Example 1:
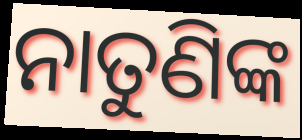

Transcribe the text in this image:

ନାତୁଣିଙ୍କ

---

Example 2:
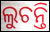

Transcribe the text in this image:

ଲୁଚନ୍ତି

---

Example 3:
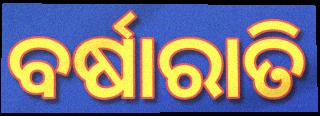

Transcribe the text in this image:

ବର୍ଷାରାତି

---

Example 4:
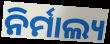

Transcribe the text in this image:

ନିର୍ମାଲ୍ୟ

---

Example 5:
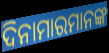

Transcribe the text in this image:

ଦିନାମାରମାନଙ୍କ